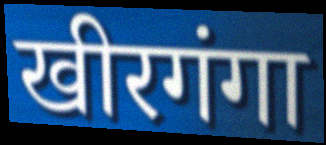
खीरगंगा